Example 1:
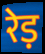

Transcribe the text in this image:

रेड़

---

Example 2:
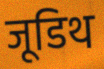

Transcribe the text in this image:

जूडिथ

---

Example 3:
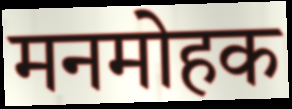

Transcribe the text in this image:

मनमोहक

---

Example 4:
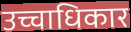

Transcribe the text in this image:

उच्‍चाधिकार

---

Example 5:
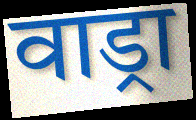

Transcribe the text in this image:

वाड्रा